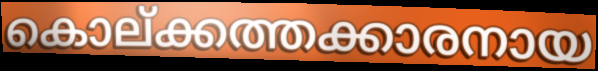
കൊല്ക്കത്തക്കാരനായ